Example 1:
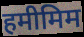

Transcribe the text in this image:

हमीमिम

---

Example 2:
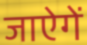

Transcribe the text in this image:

जाऐगें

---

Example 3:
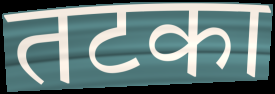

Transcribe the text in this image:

तटका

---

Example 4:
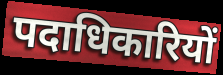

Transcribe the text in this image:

पदाधिकारियों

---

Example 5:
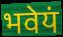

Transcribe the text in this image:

भवेयं